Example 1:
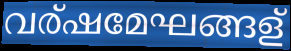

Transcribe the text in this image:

വര്ഷമേഘങ്ങള്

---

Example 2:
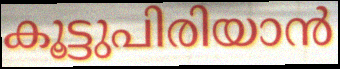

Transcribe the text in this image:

കൂട്ടുപിരിയാൻ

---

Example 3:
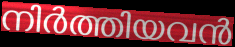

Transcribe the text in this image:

നിർത്തിയവൻ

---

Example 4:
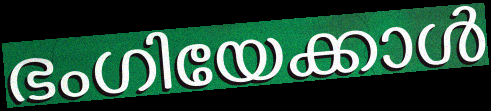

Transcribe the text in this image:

ഭംഗിയേക്കാൾ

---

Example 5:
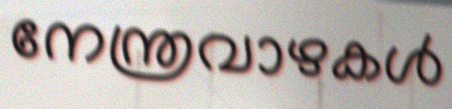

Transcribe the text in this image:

നേന്ത്രവാഴകൾ